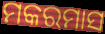
ମକରମାସ